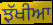
ਝੱਖੀਆ